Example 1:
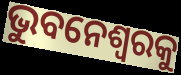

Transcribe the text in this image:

ଭୁବନେଶ୍ୱରକୁ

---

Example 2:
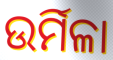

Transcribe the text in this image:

ଉର୍ମିଳା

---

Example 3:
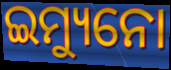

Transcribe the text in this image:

ଇମ୍ୟୁନୋ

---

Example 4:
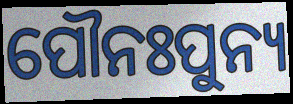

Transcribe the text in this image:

ପୌନଃପୁନ୍ୟ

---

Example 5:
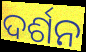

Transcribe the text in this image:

ଦର୍ଶନ